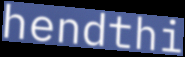
hendthi